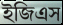
ইজিএস